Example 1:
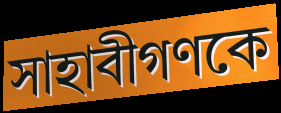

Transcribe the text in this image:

সাহাবীগণকে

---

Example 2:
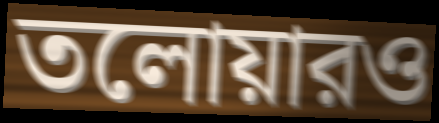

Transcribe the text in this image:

তলোয়ারও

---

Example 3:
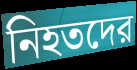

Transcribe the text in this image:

নিহতদের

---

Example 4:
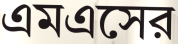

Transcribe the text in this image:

এমএসের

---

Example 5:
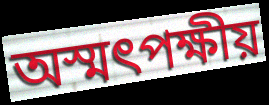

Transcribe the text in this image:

অস্মৎপক্ষীয়